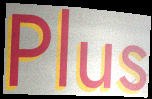
Plus